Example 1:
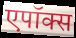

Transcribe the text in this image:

एपॉक्स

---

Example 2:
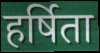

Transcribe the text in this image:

हर्षिता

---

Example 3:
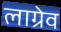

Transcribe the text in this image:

लाग्रेव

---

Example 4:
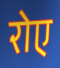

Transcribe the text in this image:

रोए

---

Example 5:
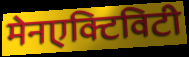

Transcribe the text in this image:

मेनएक्टिविटी